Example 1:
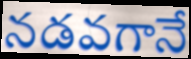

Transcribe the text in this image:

నడవగానే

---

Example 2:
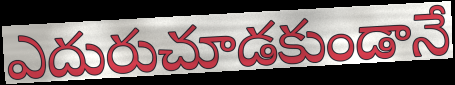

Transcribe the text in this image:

ఎదురుచూడకుండానే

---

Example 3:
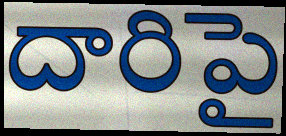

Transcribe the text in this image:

దారిపై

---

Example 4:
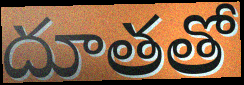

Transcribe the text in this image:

దూతతో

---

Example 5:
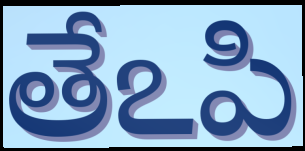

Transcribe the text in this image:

తేఽపి